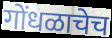
गोंधळाचेच